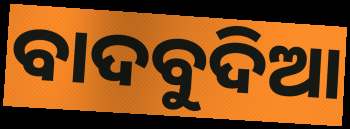
ବାଦବୁଦିଆ